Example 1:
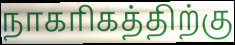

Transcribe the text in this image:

நாகரிகத்திற்கு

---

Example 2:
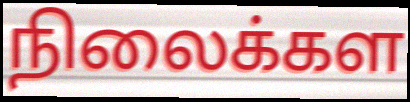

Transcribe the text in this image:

நிலைக்கள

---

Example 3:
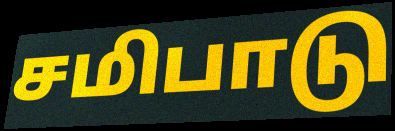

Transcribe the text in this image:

சமிபாடு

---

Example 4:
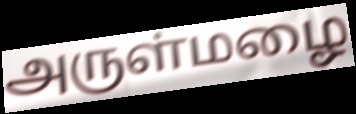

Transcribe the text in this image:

அருள்மழை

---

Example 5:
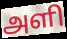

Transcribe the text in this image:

அளி